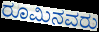
ರೂಮಿನವರು